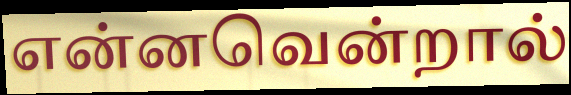
என்னவென்றால்